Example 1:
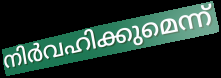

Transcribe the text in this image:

നിർവഹിക്കുമെന്ന്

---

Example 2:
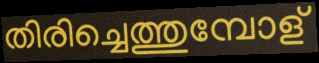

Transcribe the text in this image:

തിരിച്ചെത്തുമ്പോള്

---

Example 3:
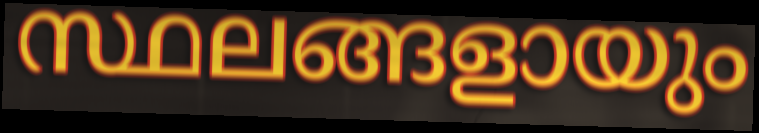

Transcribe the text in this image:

സ്ഥലങ്ങളായും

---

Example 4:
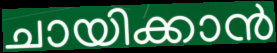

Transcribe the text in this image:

ചായിക്കാൻ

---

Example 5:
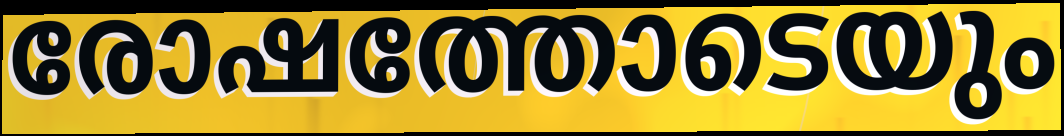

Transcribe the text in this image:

രോഷത്തോടെയും